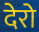
देरो